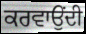
ਕਰਵਾਉਂਦੀ